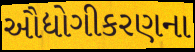
ઔદ્યોગીકરણના